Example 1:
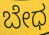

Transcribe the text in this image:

ಬೇಧ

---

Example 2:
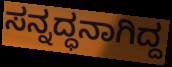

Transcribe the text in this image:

ಸನ್ನದ್ಧನಾಗಿದ್ದ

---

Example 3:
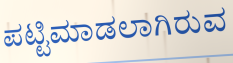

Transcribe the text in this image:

ಪಟ್ಟಿಮಾಡಲಾಗಿರುವ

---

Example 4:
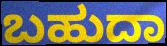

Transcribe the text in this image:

ಬಹುದಾ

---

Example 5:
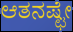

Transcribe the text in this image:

ಆತನಷ್ಟೇ